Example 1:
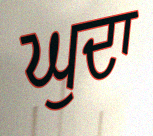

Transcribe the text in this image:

ਘੁਦਾ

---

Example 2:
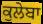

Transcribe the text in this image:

ਕੁਲੇਬਾ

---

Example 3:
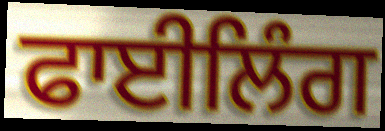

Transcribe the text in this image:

ਫਾਈਲਿੰਗ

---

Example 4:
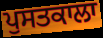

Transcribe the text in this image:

ਪੁਸਤਕਾਲਾ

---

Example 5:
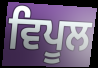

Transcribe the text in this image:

ਵਿਪੂਲ